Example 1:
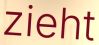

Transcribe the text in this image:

zieht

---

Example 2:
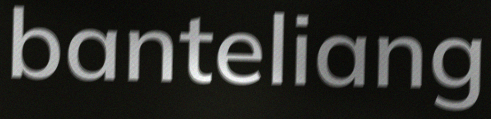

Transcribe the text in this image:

banteliang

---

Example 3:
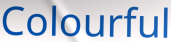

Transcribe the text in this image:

Colourful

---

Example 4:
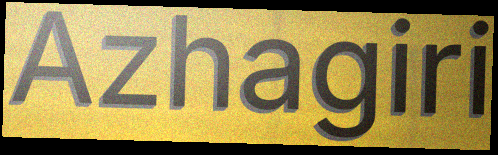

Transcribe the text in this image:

Azhagiri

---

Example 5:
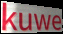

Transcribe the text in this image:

kuwe